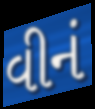
વીનં